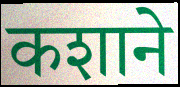
कशाने